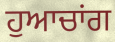
ਹੁਆਚਾਂਗ